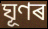
ঘূণৰ